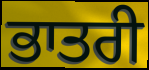
ਭਾਤਰੀ